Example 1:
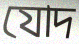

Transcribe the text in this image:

যোদ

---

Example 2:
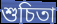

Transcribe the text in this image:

শুচিতা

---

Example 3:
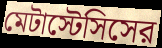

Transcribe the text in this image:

মেটাস্টেসিসের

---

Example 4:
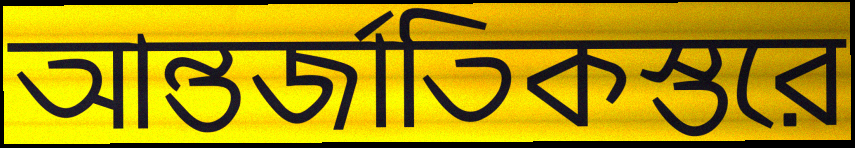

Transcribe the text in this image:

আন্তর্জাতিকস্তরে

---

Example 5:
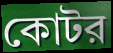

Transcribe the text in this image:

কোটর